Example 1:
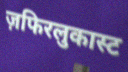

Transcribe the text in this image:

ज़फिरलुकास्ट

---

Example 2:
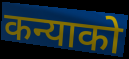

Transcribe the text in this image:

कन्याको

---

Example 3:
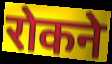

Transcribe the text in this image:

रोकने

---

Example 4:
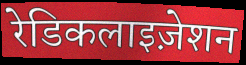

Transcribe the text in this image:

रेडिकलाइज़ेशन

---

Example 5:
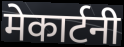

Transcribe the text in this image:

मेकार्टनी